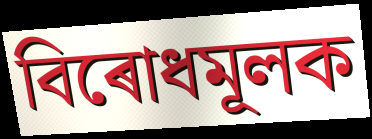
বিৰোধমূলক